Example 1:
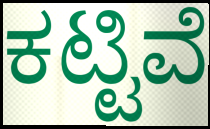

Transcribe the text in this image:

ಕಟ್ಟಿವೆ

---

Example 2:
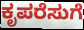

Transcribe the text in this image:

ಕೃಪರೆಸುಗೆ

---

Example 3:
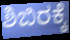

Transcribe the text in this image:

ಶಿಬಿರಕ್ಕೆ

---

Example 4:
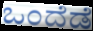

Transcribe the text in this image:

ಒಂದೆಡೆ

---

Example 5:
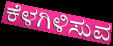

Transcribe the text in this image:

ಕೆಳಗಿಳಿಸುವ